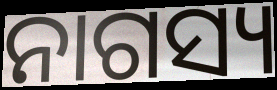
ନାଗସ୍ୟ